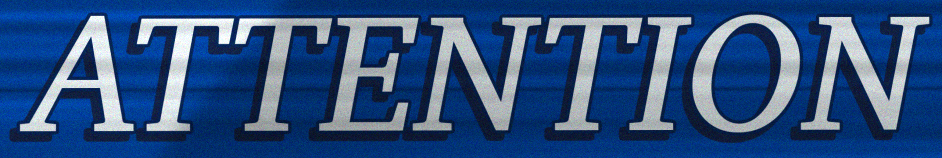
ATTENTION